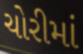
ચોરીમાં